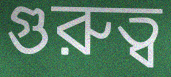
গুৰুত্ব